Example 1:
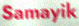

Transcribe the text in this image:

Samayik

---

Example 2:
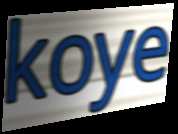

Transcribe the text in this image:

koye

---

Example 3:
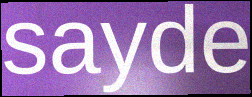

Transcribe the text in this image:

sayde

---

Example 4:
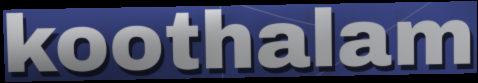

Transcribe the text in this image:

koothalam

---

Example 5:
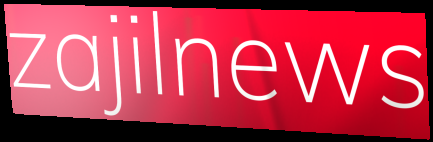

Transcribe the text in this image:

zajilnews